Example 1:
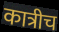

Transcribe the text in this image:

कात्रीच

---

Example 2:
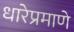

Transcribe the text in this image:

धारेप्रमाणे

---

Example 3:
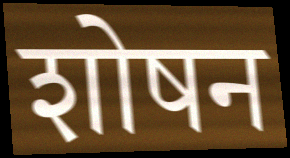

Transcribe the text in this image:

शोषन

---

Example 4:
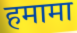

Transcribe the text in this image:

हमामा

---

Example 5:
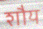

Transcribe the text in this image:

शौय